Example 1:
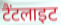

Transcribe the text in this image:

टैंटलाइट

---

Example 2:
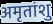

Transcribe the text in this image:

अमृतांशु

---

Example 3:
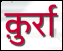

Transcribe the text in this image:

क़ुर्रा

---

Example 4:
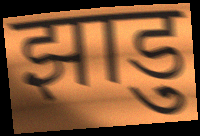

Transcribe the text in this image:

झाड़ु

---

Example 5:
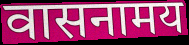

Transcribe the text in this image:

वासनामय